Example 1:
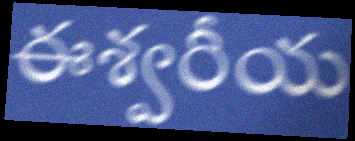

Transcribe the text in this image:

ఈశ్వరీయ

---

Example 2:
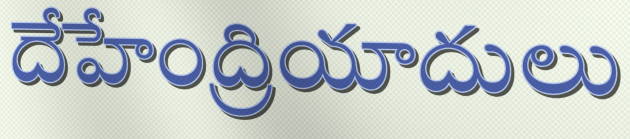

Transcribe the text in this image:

దేహేంద్రియాదులు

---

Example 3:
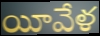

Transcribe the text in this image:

యీవేళ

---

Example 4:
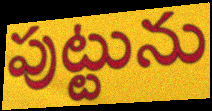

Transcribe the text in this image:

పుట్టును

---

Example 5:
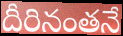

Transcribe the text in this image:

దీరినంతనే